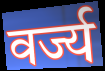
वर्ज्य